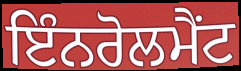
ਇੰਨਰੋਲਮੈਂਟ